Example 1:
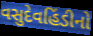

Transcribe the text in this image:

વસુદેવહિંડીનો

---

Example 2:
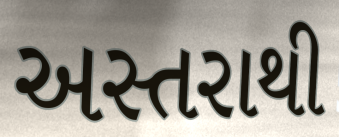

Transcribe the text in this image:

અસ્તરાથી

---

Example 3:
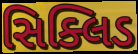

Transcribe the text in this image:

સિક્લિડ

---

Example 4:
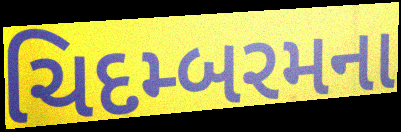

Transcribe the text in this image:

ચિદમ્બરમના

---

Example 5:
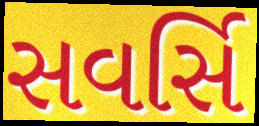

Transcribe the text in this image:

સવર્સિ